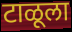
टाळूला